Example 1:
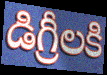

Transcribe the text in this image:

డిగ్రీలకి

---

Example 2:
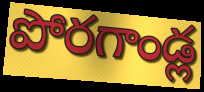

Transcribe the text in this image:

పోరగాండ్ల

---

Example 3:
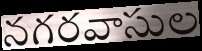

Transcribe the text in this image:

నగరవాసుల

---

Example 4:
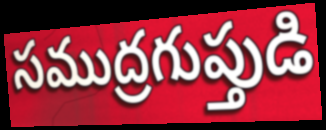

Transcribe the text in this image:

సముద్రగుప్తుడి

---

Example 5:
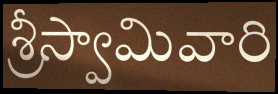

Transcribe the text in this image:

శ్రీస్వామివారి